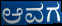
ಆವಗ